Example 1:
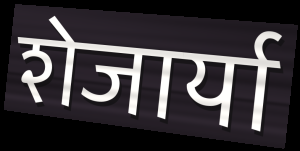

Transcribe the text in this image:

शेजार्या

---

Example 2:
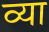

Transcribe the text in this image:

व्‍या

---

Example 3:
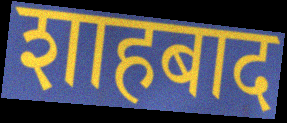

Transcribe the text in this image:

शाहबाद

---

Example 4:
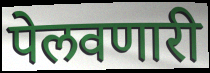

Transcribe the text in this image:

पेलवणारी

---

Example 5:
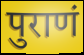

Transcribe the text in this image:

पुराणं